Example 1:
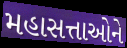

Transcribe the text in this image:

મહાસત્તાઓને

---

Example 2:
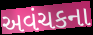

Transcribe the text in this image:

અવંચકના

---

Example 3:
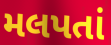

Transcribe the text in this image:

મલપતાં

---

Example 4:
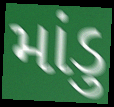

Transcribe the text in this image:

માંડુ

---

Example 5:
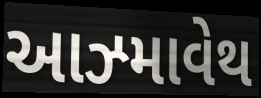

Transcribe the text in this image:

આઝ્માવેથ